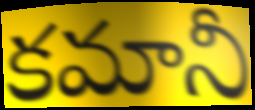
కమానీ